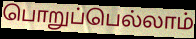
பொறுப்பெல்லாம்